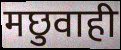
मछुवाही